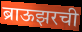
ब्राऊझरची